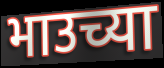
भाउच्या